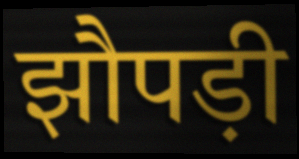
झौपड़ी